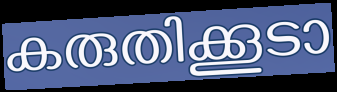
കരുതിക്കൂടാ